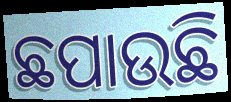
ଛପାଉଛି